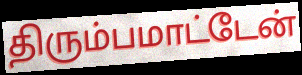
திரும்பமாட்டேன்